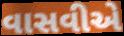
વાસવીએ